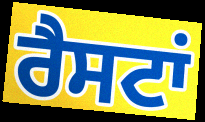
ਰੈਸਟਾਂ